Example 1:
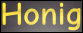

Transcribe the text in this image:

Honig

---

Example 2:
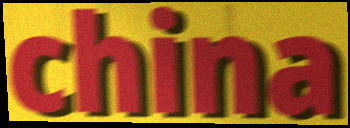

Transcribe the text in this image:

china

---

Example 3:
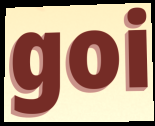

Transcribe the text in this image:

goi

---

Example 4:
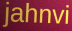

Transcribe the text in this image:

jahnvi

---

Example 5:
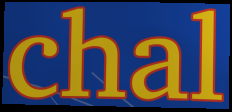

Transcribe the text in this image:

chal